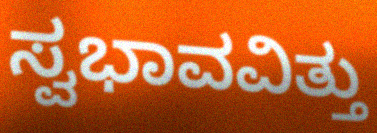
ಸ್ವಭಾವವಿತ್ತು